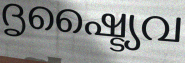
ദൃഷ്ട്യൈവ